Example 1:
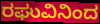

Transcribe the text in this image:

ರಘುವಿನಿಂದ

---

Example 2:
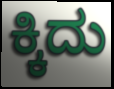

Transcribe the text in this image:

ಕ್ಕಿದು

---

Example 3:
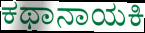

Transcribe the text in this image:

ಕಥಾನಾಯಕಿ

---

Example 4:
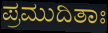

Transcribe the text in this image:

ಪ್ರಮುದಿತಾಃ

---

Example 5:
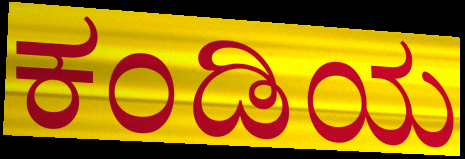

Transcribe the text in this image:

ಕಂಡಿಯ